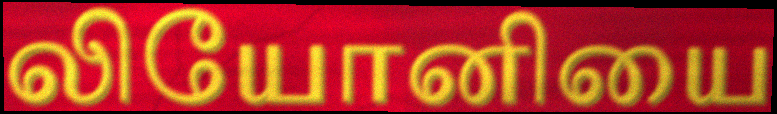
லியோனியை